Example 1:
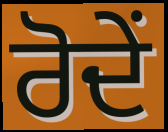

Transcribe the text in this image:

ਰੋਦੇਂ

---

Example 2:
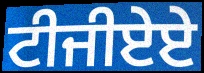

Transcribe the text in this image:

ਟੀਜੀਏਏ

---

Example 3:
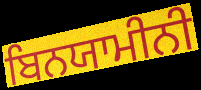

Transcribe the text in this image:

ਬਿਨਯਾਮੀਨੀ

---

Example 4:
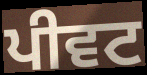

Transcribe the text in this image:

ਪੀਵਟ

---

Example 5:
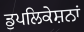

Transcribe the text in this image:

ਡੁਪਲਿਕੇਸ਼ਨਾਂ